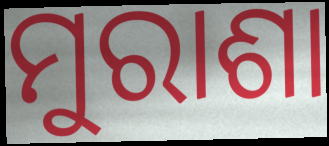
ମୁରାଶା